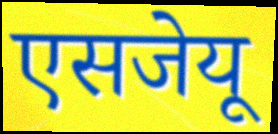
एसजेयू